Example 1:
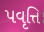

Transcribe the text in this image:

પવૃત્તિ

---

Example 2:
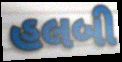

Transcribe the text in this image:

હલબી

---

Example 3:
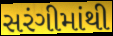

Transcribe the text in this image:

સરંગીમાંથી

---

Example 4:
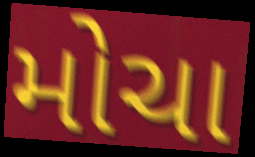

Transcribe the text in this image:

મોચા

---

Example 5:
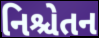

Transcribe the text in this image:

નિશ્ચેતન